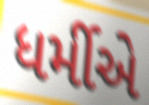
ધર્મીએ